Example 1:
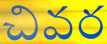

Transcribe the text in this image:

చివర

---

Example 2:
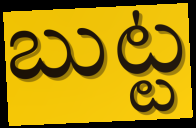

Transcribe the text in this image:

బుట్ట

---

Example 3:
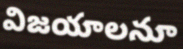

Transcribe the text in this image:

విజయాలనూ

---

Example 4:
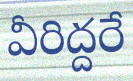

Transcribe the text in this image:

వీరిద్దరే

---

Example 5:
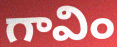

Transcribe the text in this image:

గావిం